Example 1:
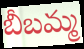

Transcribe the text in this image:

బీబమ్మ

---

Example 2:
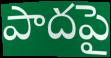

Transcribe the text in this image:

పాదపై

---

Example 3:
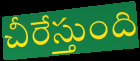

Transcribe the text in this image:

చీరేస్తుంది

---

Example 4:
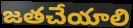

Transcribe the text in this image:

జతచేయాలి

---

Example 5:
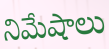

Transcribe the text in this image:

నిమేషాలు